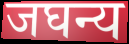
जघन्‍य